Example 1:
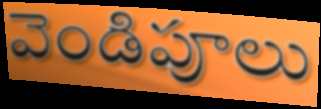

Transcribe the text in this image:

వెండిపూలు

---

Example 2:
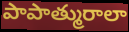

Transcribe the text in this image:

పాపాత్మురాలా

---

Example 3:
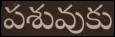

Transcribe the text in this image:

పశువుకు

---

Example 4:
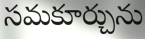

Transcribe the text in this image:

సమకూర్చును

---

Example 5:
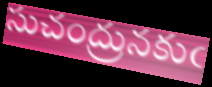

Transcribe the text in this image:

సుచంద్రునకుఁ